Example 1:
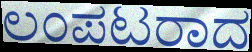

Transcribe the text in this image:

ಲಂಪಟರಾದ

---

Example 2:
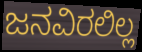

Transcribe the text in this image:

ಜನವಿರಲಿಲ್ಲ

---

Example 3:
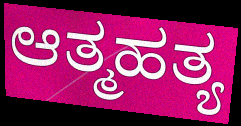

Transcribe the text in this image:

ಆತ್ಮಹತ್ಯ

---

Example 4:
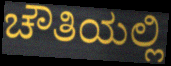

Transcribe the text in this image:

ಚೌತಿಯಲ್ಲಿ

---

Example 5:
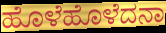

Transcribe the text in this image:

ಹೊಳೆಹೊಳೆದನಾ